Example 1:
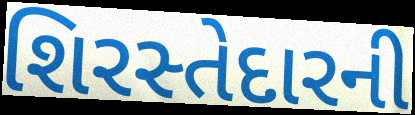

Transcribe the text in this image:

શિરસ્તેદારની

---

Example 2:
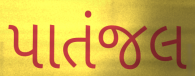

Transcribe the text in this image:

પાતંજલ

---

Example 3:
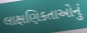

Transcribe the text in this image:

લાક્ષણિકતાઓનું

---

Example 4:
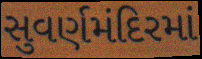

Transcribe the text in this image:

સુવર્ણમંદિરમાં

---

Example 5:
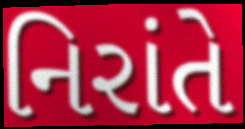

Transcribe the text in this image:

નિરાંતે